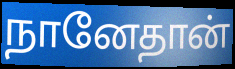
நானேதான்